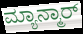
ಮ್ಯಾನ್ಮಾರ್